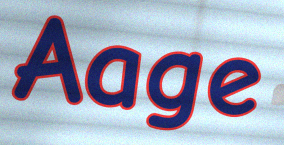
Aage